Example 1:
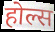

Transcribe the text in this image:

होल्स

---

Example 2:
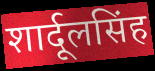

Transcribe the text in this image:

शार्दूलसिंह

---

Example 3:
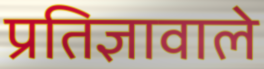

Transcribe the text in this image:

प्रतिज्ञावाले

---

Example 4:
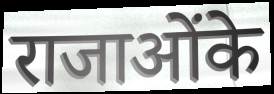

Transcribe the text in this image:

राजाओंके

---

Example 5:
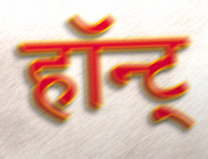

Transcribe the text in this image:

हॉन्ट्